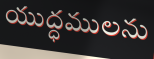
యుద్ధములను